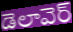
డెలావెర్